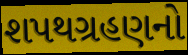
શપથગ્રહણનો